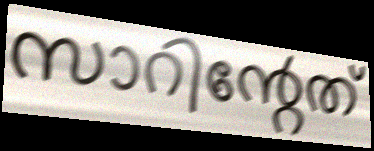
സാറിന്റേത്